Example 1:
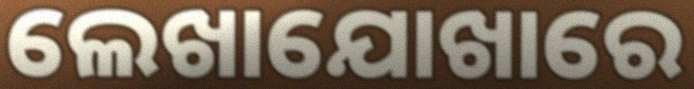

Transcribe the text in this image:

ଲେଖାଯୋଖାରେ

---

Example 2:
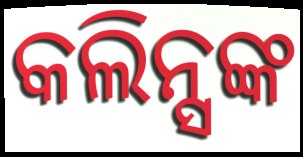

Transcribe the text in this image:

କଲିନ୍ସଙ୍କ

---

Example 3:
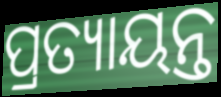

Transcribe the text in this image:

ପ୍ରତ୍ୟାୟନ୍ତ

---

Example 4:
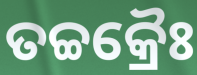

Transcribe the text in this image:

ତଚ୍ଚକ୍ରୈଃ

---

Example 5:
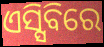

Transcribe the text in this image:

ଏସ୍ସିବିରେ